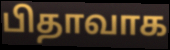
பிதாவாக